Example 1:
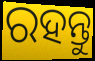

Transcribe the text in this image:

ରହନ୍ତୁ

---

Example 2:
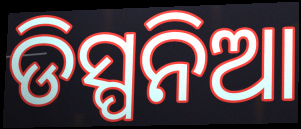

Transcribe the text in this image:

ଡିସ୍ପନିଆ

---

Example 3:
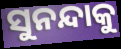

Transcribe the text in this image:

ସୁନନ୍ଦାକୁ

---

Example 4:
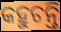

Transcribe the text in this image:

କହୁଚନ୍ତି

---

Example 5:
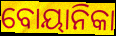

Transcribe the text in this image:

ବୋୟାନିକା